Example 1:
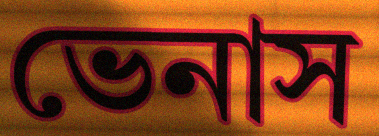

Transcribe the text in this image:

ভেনাস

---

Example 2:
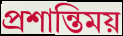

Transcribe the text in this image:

প্রশান্তিময়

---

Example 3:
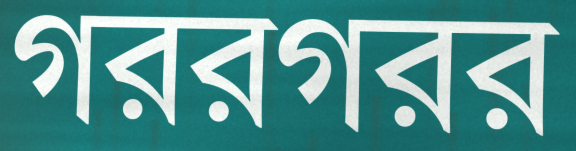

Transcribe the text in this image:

গররগরর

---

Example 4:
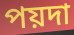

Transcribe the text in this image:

পয়দা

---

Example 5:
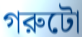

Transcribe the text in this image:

গরুটো